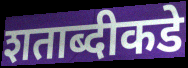
शताब्दीकडे